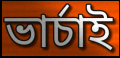
ভাৰ্চাই